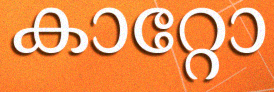
കാറ്റോ